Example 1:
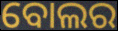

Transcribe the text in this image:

ବୋଲର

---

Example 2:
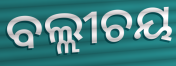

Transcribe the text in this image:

ବଲ୍ଲୀଚୟ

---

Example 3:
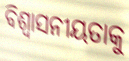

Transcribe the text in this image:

ବିଶ୍ୱାସନୀୟତାକୁ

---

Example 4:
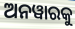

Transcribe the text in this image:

ଅନୱାରକୁ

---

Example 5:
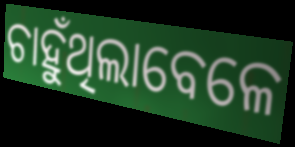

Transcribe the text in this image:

ଚାହୁଁଥିଲାବେଳେ